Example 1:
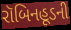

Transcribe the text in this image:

રૉબિનહૂડની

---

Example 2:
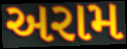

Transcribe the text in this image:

અરામ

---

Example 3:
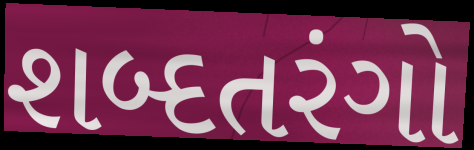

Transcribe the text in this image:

શબ્દતરંગો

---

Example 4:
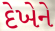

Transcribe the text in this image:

દેખેને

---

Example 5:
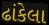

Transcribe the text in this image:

ઢાંકેલા